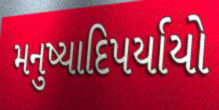
મનુષ્યાદિપર્યાયો